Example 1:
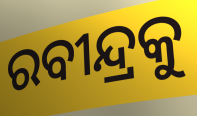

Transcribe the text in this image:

ରବୀନ୍ଦ୍ରକୁ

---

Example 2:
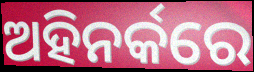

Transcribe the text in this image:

ଅହିନର୍କରେ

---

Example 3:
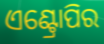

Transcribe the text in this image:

ଏଣ୍ଟ୍ରୋପିର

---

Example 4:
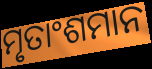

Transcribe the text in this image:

ମୃତାଂଶମାନ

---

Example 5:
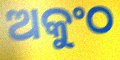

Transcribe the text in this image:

ଅକୁଂଠ